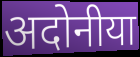
अदोनीया